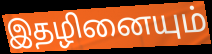
இதழினையும்